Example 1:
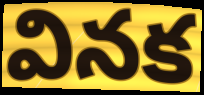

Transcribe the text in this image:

వినక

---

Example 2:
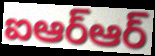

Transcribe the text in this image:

ఐఆర్ఆర్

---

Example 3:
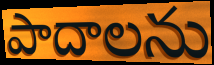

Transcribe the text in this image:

పాదాలను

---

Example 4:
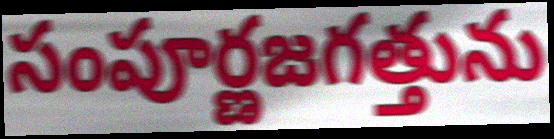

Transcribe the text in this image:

సంపూర్ణజగత్తును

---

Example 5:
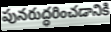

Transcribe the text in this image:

పునరుద్ధరించడానికి